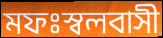
মফঃস্বলবাসী